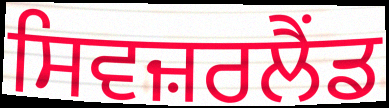
ਸਿਵਜ਼ਰਲੈਂਡ